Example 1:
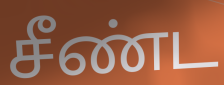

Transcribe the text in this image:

சீண்ட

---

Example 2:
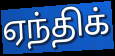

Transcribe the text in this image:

ஏந்திக்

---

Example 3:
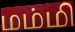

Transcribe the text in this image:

மம்மி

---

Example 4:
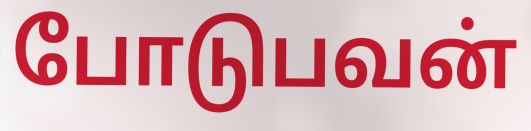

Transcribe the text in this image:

போடுபவன்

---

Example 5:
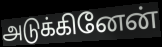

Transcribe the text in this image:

அடுக்கினேன்